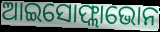
ଆଇସୋଫ୍ଲାଭୋନ